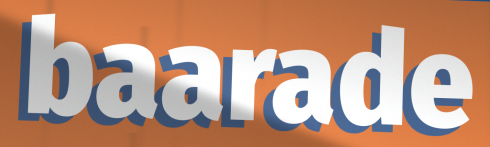
baarade